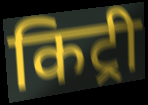
किट्री